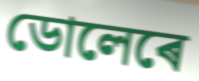
ডোলেৰে